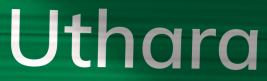
Uthara